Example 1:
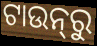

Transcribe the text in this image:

ଟାଉନ୍‌ରୁ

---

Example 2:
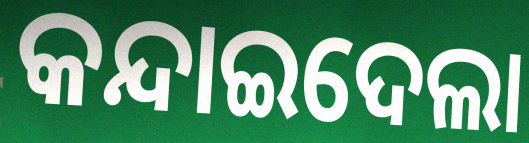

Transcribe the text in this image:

କନ୍ଦାଇଦେଲା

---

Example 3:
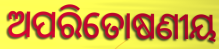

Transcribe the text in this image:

ଅପରିତୋଷଣୀୟ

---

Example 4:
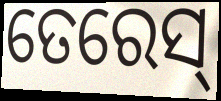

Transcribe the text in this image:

ତେରେସ୍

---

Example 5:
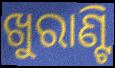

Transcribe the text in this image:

ଖୁରାଣ୍ଟି